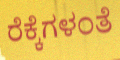
ರೆಕ್ಕೆಗಳಂತೆ